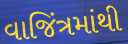
વાજિંત્રમાંથી